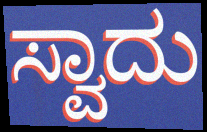
ಸ್ವಾದು